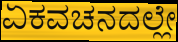
ಏಕವಚನದಲ್ಲೇ